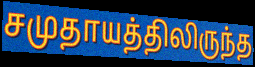
சமுதாயத்திலிருந்த